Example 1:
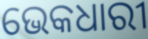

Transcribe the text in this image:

ଭେକଧାରୀ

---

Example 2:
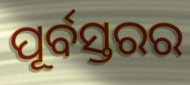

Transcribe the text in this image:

ପୂର୍ବସ୍ତରର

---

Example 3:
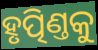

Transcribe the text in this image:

ହୃତ୍ପିଣ୍ତକୁ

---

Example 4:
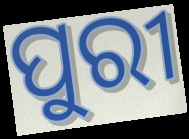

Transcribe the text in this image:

ପୁରୀ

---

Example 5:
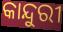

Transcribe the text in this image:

କାନ୍ଦୁରୀ